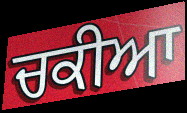
ਚਕੀਆ